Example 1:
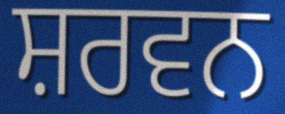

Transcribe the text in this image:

ਸ਼ਰਵਨ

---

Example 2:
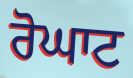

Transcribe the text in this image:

ਰੋਘਾਟ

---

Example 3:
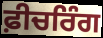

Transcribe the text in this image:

ਫ਼ੀਚਰਿੰਗ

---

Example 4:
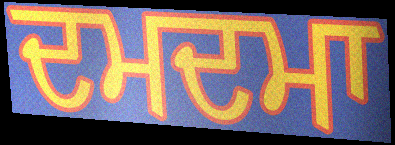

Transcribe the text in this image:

ਦਮਦਮਾ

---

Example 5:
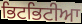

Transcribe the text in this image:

ਭਿਟਭਿਟੀਆ